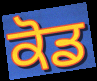
ਕੋਡ